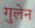
गुलेन